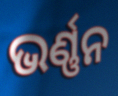
ଭର୍ଣ୍ଣନ